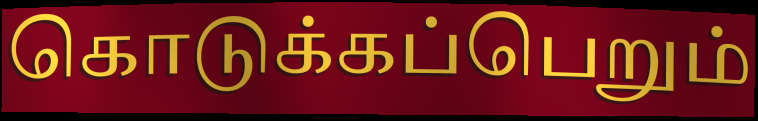
கொடுக்கப்பெறும்